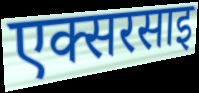
एक्सरसाइ